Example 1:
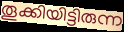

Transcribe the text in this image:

തൂക്കിയിട്ടിരുന്ന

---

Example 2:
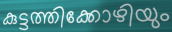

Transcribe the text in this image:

കുട്ടത്തിക്കോഴിയും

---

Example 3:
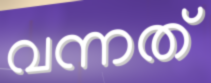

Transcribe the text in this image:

വന്നത്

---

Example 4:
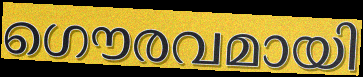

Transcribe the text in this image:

ഗൌരവമായി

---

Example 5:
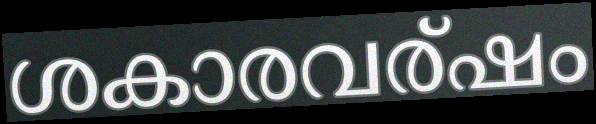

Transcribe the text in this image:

ശകാരവര്ഷം